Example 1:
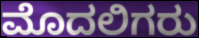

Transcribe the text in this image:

ಮೊದಲಿಗರು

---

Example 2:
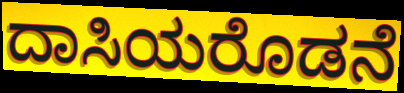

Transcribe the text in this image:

ದಾಸಿಯರೊಡನೆ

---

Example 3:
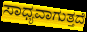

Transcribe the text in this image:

ಸಾಧ್ಯವಾಗುತ್ತದೆ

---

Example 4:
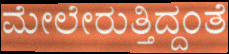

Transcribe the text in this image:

ಮೇಲೇರುತ್ತಿದ್ದಂತೆ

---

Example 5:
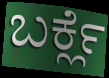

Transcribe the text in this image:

ಬರ್ಕ್ಲೆ